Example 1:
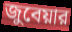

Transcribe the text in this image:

জুবেয়ার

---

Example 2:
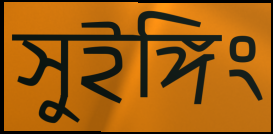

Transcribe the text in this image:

সুইঙ্গিং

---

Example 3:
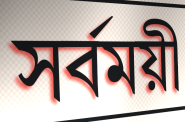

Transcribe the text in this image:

সর্বময়ী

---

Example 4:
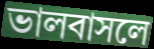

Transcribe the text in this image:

ভালবাসলে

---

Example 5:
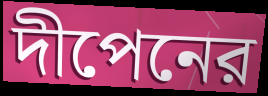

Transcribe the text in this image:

দীপেনের